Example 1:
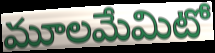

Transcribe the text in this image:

మూలమేమిటో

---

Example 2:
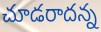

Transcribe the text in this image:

చూడరాదన్న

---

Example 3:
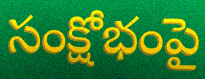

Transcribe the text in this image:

సంక్షోభంపై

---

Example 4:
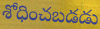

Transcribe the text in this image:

శోధించబడడు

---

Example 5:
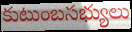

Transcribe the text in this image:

కుటుంబసభ్యులు